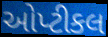
ઓપ્ટીકલ